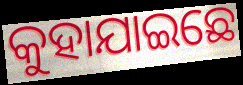
କୁହାଯାଇଛେ